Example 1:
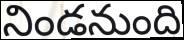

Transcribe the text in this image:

నిండనుంది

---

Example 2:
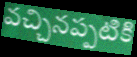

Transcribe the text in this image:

వచ్చినప్పటికి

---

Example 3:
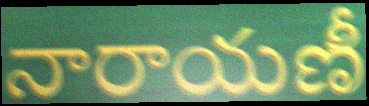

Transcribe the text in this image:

నారాయణీ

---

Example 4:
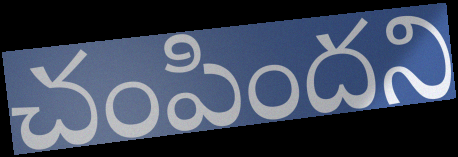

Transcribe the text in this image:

చంపిందని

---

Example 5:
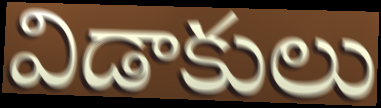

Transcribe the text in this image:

విడాకులు